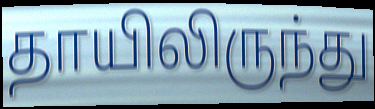
தாயிலிருந்து